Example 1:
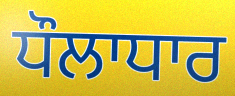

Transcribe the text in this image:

ਧੌਲਾਧਾਰ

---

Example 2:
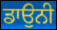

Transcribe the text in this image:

ਡਾਉਨੀ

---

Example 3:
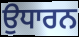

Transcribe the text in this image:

ਉਧਾਰਨ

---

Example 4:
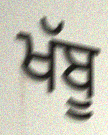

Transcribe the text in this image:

ਖੱਬੂ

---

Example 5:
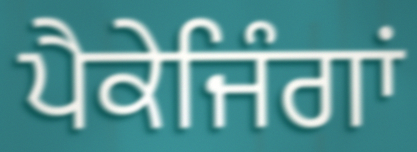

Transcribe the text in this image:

ਪੈਕੇਜਿੰਗਾਂ